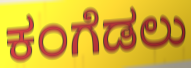
ಕಂಗೆಡಲು